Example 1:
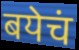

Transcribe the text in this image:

बयेचं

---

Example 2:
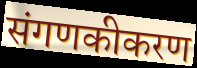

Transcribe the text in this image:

संगणकीकरण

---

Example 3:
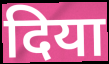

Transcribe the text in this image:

दिया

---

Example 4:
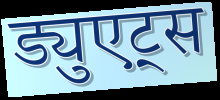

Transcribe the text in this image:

ड्युएट्स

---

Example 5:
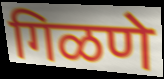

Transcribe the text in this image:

गिळणे